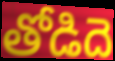
తోడిదె